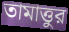
তামাত্তুর